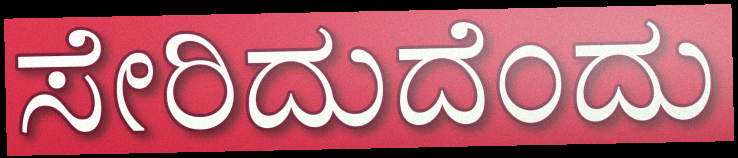
ಸೇರಿದುದೆಂದು